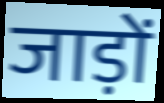
जाड़ों